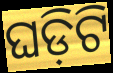
ଘଡ଼ିଟି